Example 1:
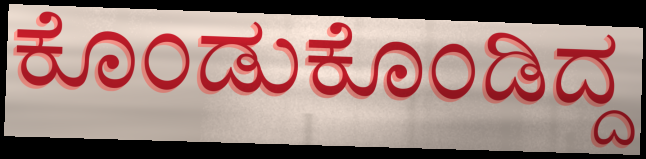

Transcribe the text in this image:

ಕೊಂಡುಕೊಂಡಿದ್ದ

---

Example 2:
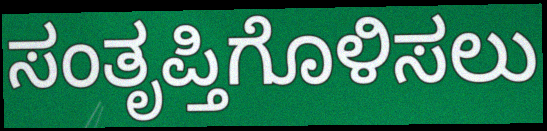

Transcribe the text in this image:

ಸಂತೃಪ್ತಿಗೊಳಿಸಲು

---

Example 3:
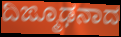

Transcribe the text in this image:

ದಿಙ್ಮೂಢನಾದ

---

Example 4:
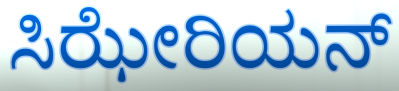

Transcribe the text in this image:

ಸಿಝೇರಿಯನ್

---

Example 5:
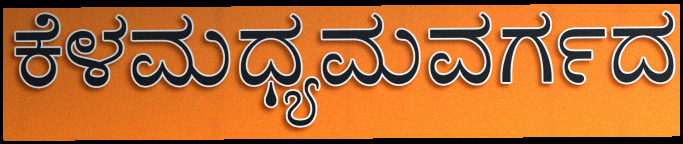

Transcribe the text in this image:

ಕೆಳಮಧ್ಯಮವರ್ಗದ